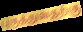
புகுத்துவதற்கு